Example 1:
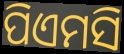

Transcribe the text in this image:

ପିଏମସି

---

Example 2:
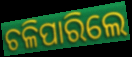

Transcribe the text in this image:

ଚଳିପାରିଲେ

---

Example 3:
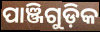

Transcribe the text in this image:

ପାଞ୍ଜିଗୁଡ଼ିକ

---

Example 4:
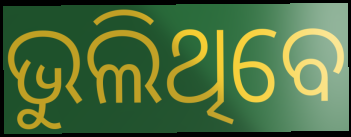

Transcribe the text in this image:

ଭୁଲିଥିବେ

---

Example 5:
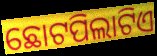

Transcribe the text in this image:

ଛୋଟପିଲାଟିଏ